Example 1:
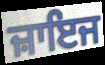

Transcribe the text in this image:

ਜ਼ਾਇਜ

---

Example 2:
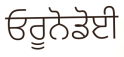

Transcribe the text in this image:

ਓਰੂਨੋਡੋਈ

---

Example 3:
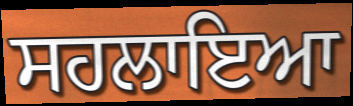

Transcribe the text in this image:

ਸਹਲਾਇਆ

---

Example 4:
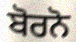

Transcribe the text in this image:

ਬੋਰਨੋ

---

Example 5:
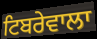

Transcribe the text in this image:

ਟਿਬਰੇਵਾਲਾ